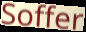
Soffer